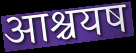
आश्चयष